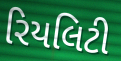
રિયલિટી